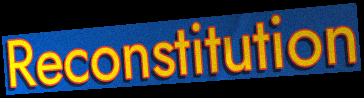
Reconstitution